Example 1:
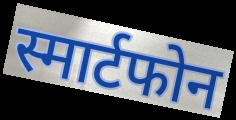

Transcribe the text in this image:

स्मार्टफोन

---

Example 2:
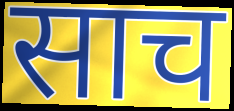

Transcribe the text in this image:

साच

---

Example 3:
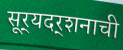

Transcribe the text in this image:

सूर्यदर्शनाची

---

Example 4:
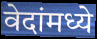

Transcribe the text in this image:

वेदांमध्ये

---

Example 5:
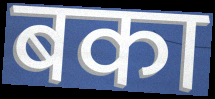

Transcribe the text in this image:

बका